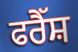
ਫਰੈੱਸ਼